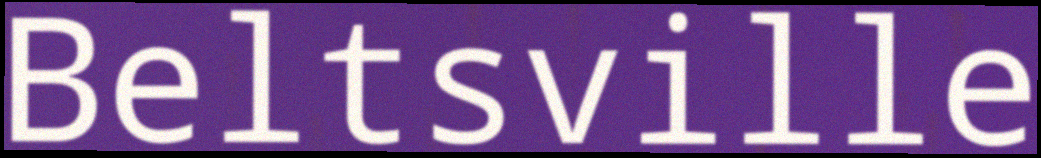
Beltsville